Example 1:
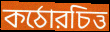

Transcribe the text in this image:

কঠোরচিত্ত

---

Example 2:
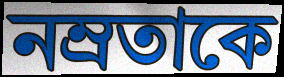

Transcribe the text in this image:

নম্রতাকে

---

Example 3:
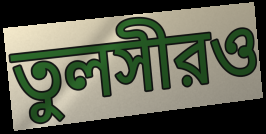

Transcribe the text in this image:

তুলসীরও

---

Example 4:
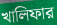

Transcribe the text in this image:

খালিফার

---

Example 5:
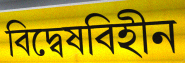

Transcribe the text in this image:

বিদ্বেষবিহীন